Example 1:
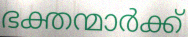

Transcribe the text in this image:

ഭക്തന്മാർക്ക്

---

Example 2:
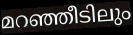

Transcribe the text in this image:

മറഞ്ഞീടിലും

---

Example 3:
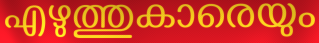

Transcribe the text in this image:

എഴുത്തുകാരെയും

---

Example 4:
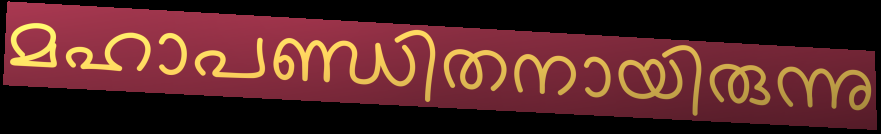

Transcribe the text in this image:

മഹാപണ്ഡിതനായിരുന്നു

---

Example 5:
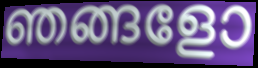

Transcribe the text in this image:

ഞങ്ങളോ